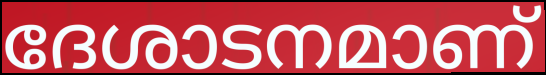
ദേശാടനമാണ്